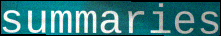
summaries